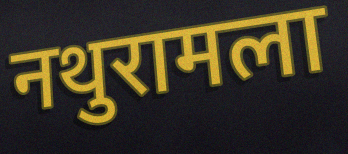
नथुरामला